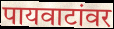
पायवाटांवर